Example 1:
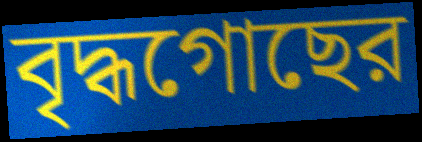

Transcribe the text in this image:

বৃদ্ধগোছের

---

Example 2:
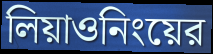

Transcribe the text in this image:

লিয়াওনিংয়ের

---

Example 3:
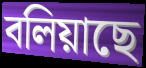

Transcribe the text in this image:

বলিয়াছে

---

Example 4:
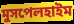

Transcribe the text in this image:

মুসপেলহাইম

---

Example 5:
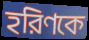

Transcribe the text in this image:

হরিণকে